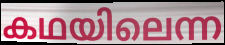
കഥയിലെന്ന